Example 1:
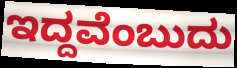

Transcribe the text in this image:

ಇದ್ದವೆಂಬುದು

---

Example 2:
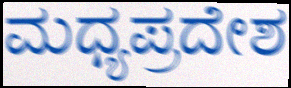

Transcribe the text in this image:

ಮಧ್ಯಪ್ರದೇಶ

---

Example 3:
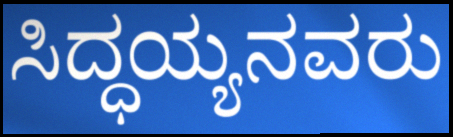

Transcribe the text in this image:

ಸಿದ್ಧಯ್ಯನವರು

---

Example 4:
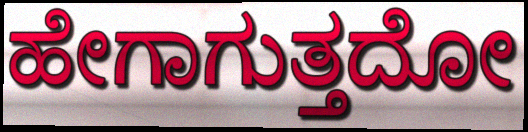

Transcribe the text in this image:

ಹೇಗಾಗುತ್ತದೋ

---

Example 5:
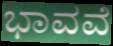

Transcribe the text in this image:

ಭಾವವೆ